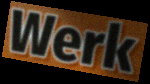
Werk